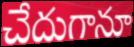
చేదుగానూ